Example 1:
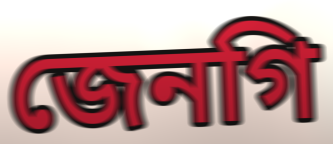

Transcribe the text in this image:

জেনগি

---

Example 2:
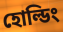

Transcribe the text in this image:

হোল্ডিং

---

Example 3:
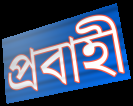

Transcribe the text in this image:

প্রবাহী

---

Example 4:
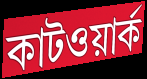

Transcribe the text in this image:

কাটওয়ার্ক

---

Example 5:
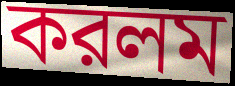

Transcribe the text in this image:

করলম